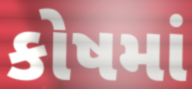
કોષમાં